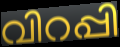
വിറപ്പി